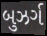
બુઝર્ગ